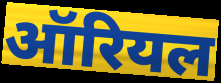
ऑरियल